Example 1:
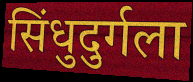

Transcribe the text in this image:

सिंधुदुर्गला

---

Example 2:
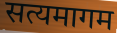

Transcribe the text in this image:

सत्यमागम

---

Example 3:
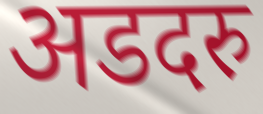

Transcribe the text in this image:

अडदरु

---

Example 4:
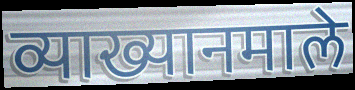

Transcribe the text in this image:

व्याख्यानमाले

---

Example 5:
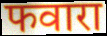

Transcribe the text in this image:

फवारा